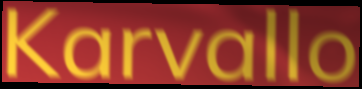
Karvallo